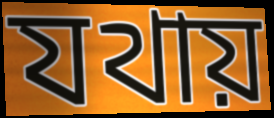
যথায়